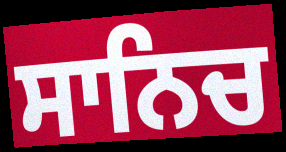
ਸਾਨਿਚ